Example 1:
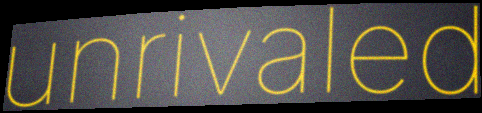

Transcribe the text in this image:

unrivaled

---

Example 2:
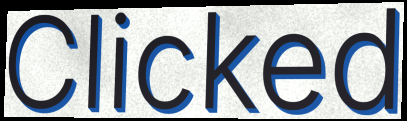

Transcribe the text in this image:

Clicked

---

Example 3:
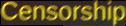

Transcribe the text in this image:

Censorship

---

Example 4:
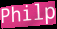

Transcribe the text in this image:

Philp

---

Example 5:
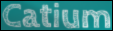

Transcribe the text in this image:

Catium